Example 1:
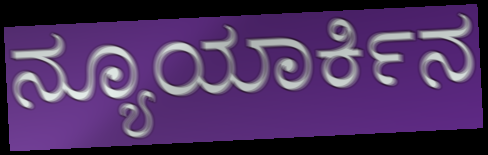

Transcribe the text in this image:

ನ್ಯೂಯಾರ್ಕಿನ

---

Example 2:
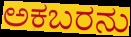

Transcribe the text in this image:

ಅಕಬರನು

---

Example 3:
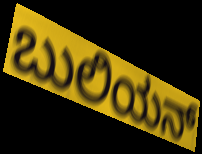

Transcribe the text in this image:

ಬುಲಿಯನ್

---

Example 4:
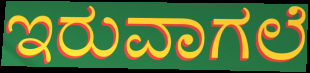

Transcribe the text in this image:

ಇರುವಾಗಲೆ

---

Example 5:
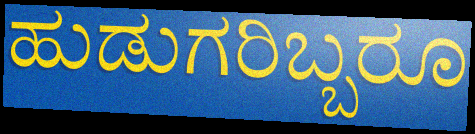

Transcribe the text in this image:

ಹುಡುಗರಿಬ್ಬರೂ